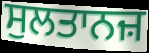
ਸੁਲਤਾਨਜ਼